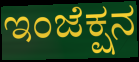
ಇಂಜೆಕ್ಷನ